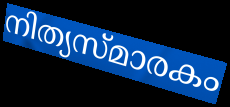
നിത്യസ്മാരകം